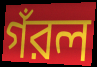
গঁরল